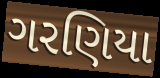
ગરણિયા